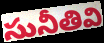
సునీతివి